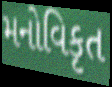
મનોવિકૃત